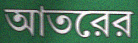
আতরের